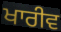
ਖਾਰੀਵ